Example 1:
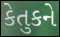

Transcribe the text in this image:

કેતુકને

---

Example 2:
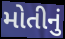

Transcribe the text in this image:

મોતીનું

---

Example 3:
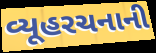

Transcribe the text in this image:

વ્યૂહરચનાની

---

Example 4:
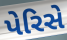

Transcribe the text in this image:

પેરિસે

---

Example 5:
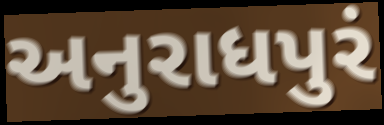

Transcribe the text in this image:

અનુરાધપુરં